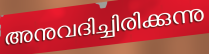
അനുവദിച്ചിരിക്കുന്നു